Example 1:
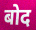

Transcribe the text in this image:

बोद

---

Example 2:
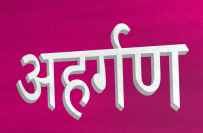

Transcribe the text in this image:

अहर्गण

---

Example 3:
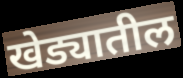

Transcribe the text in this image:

खेड्यातील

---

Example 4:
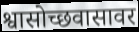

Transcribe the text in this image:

श्वासोच्छवासावर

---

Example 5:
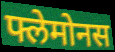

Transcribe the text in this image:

फ्लेमोनस